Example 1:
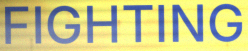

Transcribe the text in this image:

FIGHTING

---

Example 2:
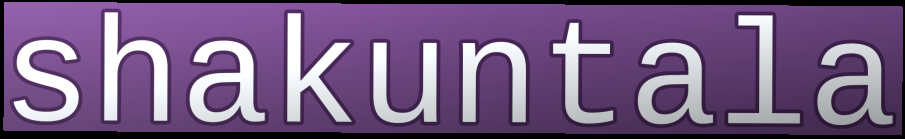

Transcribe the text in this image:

shakuntala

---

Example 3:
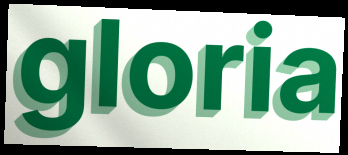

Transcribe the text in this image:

gloria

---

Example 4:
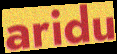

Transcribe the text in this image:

aridu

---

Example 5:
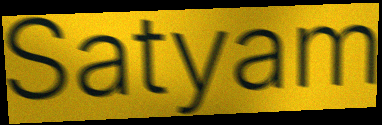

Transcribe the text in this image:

Satyam